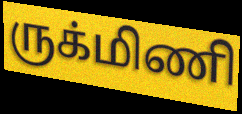
ருக்மிணி